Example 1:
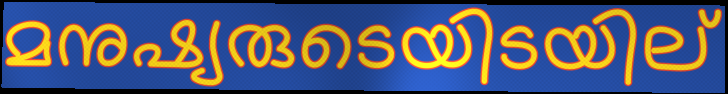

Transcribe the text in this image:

മനുഷ്യരുടെയിടയില്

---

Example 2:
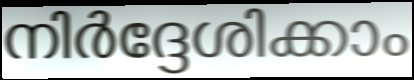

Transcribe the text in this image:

നിർദ്ദേശിക്കാം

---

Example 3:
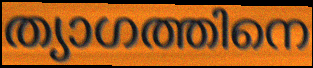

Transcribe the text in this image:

ത്യാഗത്തിനെ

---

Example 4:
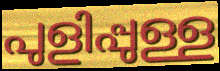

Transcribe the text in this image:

പുളിപ്പുള്ള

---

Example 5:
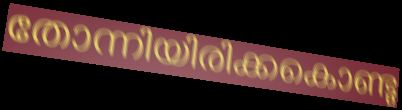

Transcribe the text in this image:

തോന്നിയിരിക്കകൊണ്ടു